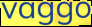
vaggo